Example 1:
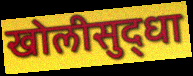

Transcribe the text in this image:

खोलीसुद्धा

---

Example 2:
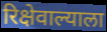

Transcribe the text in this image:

रिक्षेवाल्याला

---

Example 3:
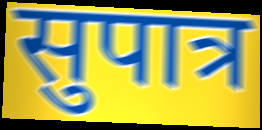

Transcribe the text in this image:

सुपात्र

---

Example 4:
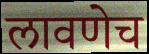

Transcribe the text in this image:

लावणेच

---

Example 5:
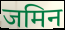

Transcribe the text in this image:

जमिन